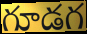
గూడగ